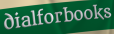
dialforbooks